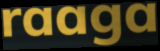
raaga